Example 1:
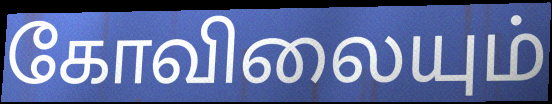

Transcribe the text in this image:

கோவிலையும்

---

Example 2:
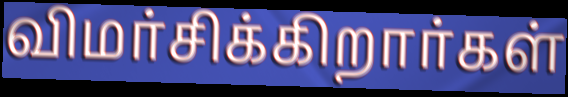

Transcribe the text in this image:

விமர்சிக்கிறார்கள்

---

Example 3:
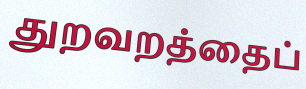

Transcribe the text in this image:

துறவறத்தைப்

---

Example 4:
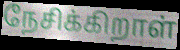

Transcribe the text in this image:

நேசிக்கிறாள்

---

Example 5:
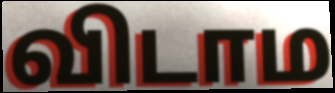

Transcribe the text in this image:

விடாம